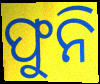
ଫୁନି